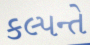
કલ્પન્તે